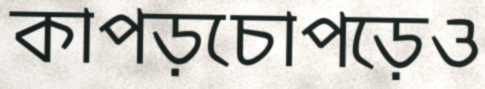
কাপড়চোপড়েও